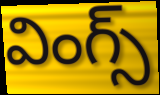
వింగ్స్